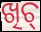
ଖିଚ୍